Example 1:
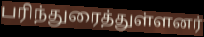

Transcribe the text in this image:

பரிந்துரைத்துள்ளனர்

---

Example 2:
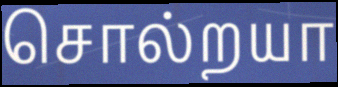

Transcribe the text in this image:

சொல்றயா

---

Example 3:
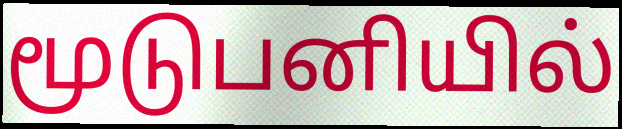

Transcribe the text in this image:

மூடுபனியில்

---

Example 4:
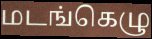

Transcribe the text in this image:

மடங்கெழு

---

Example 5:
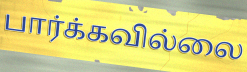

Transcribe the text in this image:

பார்க்கவில்லை